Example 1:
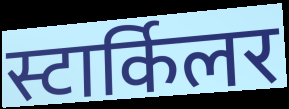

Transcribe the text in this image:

स्टार्किलर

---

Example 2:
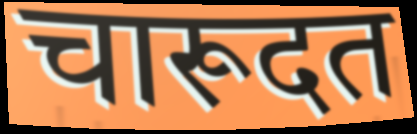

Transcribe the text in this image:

चारूदत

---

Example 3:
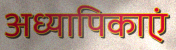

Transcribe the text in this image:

अध्यापिकाएं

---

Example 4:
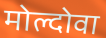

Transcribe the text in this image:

मोल्दोवा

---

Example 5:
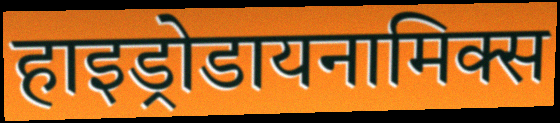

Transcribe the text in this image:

हाइड्रोडायनामिक्स